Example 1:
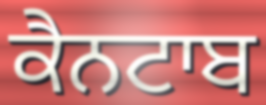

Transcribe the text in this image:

ਕੈਨਟਾਬ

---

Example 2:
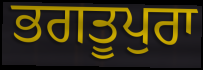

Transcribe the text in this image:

ਭਗਤੂਪੁਰਾ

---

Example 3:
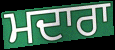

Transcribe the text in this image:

ਮਦਾਰਾ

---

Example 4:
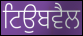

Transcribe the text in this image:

ਟਿਉਬਵੈਲ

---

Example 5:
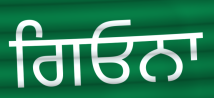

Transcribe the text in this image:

ਗਿਓਨਾ